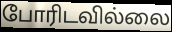
போரிடவில்லை